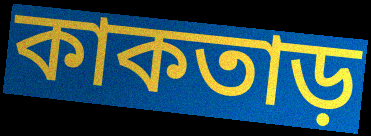
কাকতাড়